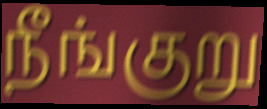
நீங்குறு